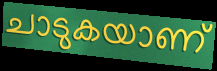
ചാടുകയാണ്